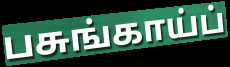
பசுங்காய்ப்